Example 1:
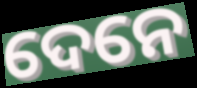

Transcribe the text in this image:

ଦେନେ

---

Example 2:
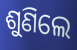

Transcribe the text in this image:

ଶୁଣିଲେ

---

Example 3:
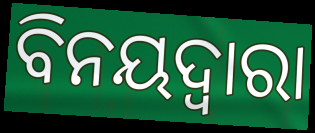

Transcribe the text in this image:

ବିନୟଦ୍ୱାରା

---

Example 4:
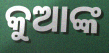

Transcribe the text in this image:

କୁଆଙ୍କ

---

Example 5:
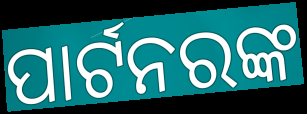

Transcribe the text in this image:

ପାର୍ଟନରଙ୍କ